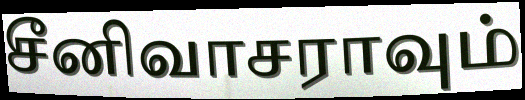
சீனிவாசராவும்